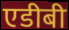
एडीबी